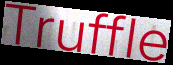
Truffle